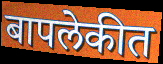
बापलेकीत